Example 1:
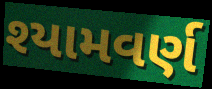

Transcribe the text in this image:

શ્યામવર્ણ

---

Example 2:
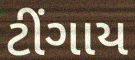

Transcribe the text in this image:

ટીંગાય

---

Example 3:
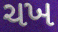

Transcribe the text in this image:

ચખ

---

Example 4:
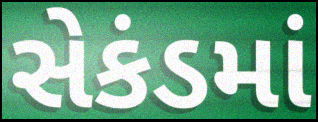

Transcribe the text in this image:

સેકંડમાં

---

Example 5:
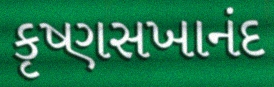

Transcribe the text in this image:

કૃષ્ણસખાનંદ